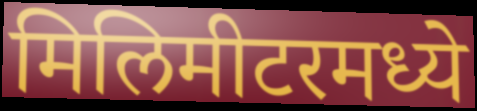
मिलिमीटरमध्ये